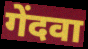
गेंदवा